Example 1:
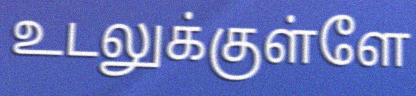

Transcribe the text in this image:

உடலுக்குள்ளே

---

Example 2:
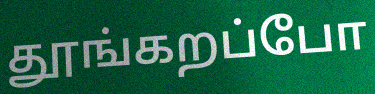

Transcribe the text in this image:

தூங்கறப்போ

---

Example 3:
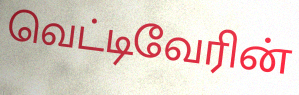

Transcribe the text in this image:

வெட்டிவேரின்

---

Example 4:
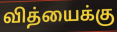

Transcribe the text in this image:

வித்யைக்கு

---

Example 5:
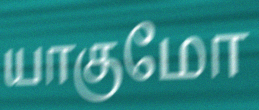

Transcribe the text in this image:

யாகுமோ